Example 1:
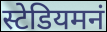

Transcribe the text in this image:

स्टेडियमनं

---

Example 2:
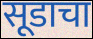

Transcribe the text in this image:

सूडाचा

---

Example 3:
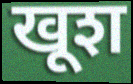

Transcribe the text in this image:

खूश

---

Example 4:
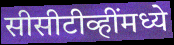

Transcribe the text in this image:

सीसीटीव्हींमध्ये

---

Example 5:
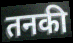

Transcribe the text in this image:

तनकी